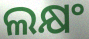
ଲକ୍ଷଂ